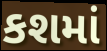
કશમાં